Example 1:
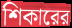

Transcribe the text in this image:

শিকারের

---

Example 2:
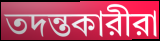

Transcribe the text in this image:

তদন্তকারীরা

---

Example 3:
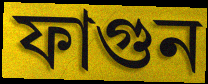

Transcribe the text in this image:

ফাগুন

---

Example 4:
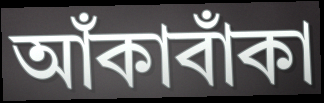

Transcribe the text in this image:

আঁকাবাঁকা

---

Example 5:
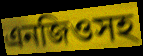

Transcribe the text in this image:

এনজিওসহ